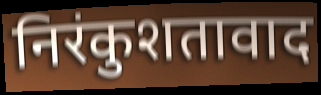
निरंकुशतावाद